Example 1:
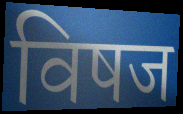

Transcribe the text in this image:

विषज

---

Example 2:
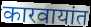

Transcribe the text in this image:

कारवायांत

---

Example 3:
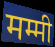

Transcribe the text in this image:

मम्मी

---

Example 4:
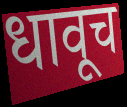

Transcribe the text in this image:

धावूच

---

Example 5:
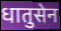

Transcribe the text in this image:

धातुसेन